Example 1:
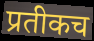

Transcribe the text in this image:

प्रतीकच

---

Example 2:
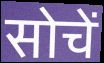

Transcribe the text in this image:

सोचें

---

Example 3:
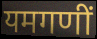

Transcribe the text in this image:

यमगणीं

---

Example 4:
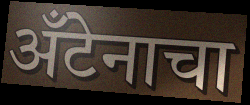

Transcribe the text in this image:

अँटेनाचा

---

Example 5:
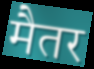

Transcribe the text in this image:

मैतर